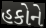
હકોને